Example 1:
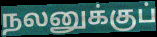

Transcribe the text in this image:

நலனுக்குப்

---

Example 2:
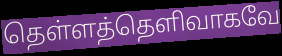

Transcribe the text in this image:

தெள்ளத்தெளிவாகவே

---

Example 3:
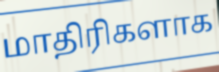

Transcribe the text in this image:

மாதிரிகளாக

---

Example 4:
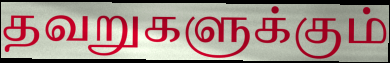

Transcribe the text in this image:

தவறுகளுக்கும்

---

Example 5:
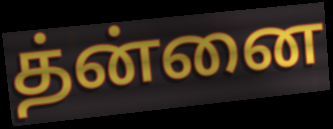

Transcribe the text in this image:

த்ன்னை